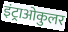
इंट्राओकुलर